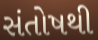
સંતોષથી